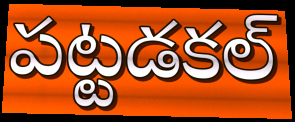
పట్టడకల్